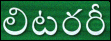
లిటరరీ